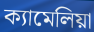
ক্যামেলিয়া